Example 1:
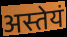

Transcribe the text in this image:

अस्तेयं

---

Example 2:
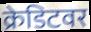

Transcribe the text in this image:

क्रेडिटवर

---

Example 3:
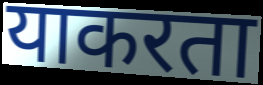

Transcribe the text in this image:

याकरता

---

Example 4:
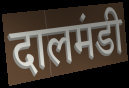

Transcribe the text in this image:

दालमंडी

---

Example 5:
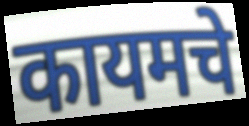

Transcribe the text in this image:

कायमचे